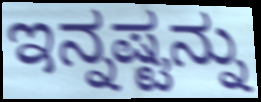
ಇನ್ನಷ್ಟನ್ನು